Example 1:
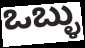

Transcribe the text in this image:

ಒಬ್ಳು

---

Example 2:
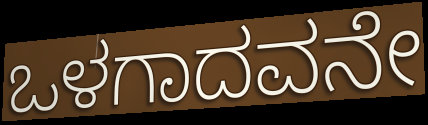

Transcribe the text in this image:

ಒಳಗಾದವನೇ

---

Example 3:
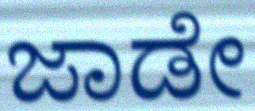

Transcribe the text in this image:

ಜಾಡೇ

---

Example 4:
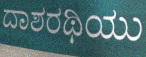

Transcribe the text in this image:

ದಾಶರಥಿಯು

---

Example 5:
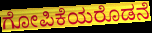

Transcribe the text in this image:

ಗೋಪಿಕೆಯರೊಡನೆ